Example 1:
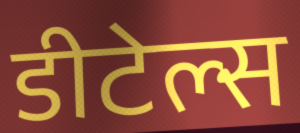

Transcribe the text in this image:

डीटेल्‍स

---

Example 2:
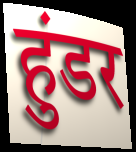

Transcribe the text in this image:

हुंडर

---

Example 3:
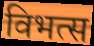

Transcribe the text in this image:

विभत्स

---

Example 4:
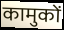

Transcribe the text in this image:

कामुकों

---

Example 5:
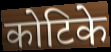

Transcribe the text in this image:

कोटिके